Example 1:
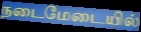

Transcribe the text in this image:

நடைமேடையில்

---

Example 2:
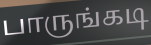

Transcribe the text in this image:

பாருங்கடி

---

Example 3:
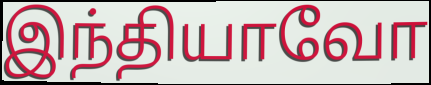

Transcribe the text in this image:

இந்தியாவோ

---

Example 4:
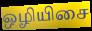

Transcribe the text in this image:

ஒழியிசை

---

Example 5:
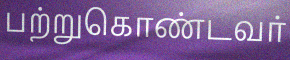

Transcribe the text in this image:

பற்றுகொண்டவர்